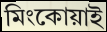
মিংকোয়াই